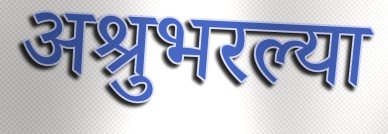
अश्रुभरल्या